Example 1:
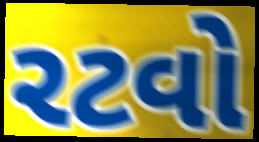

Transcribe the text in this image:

રટવો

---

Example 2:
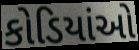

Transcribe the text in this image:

કોડિયાંઓ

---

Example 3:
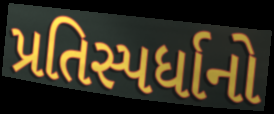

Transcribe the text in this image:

પ્રતિસ્પર્ધાનો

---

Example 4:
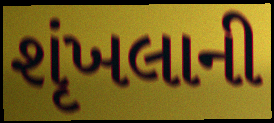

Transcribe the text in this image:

શૃંખલાની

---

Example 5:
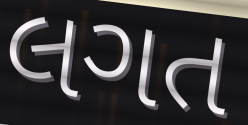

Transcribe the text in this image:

લગત